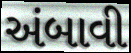
અંબાવી